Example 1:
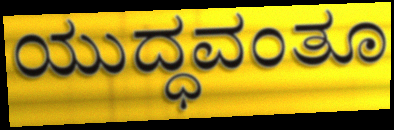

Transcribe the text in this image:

ಯುದ್ಧವಂತೂ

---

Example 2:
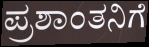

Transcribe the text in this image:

ಪ್ರಶಾಂತನಿಗೆ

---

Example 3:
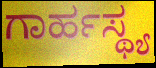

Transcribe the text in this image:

ಗಾರ್ಹಸ್ಥ್ಯ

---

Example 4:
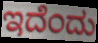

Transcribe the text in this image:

ಇದೆಂದು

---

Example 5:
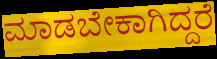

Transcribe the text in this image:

ಮಾಡಬೇಕಾಗಿದ್ದರೆ